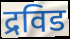
द्रविड